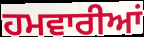
ਹਮਵਾਰੀਆਂ